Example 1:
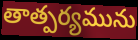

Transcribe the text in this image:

తాత్పర్యమును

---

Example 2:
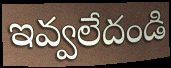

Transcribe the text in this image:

ఇవ్వలేదండి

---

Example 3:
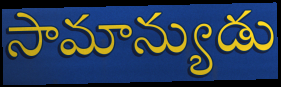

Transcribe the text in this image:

సామాన్యుడు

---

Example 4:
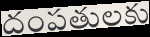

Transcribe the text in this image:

దంపతులకు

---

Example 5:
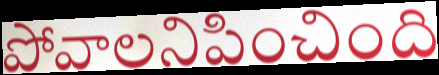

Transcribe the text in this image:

పోవాలనిపించింది